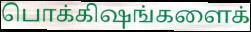
பொக்கிஷங்களைக்